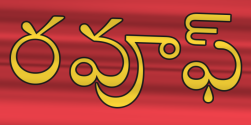
రవూఫ్